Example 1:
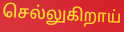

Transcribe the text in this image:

செல்லுகிறாய்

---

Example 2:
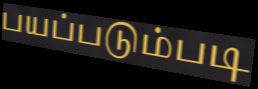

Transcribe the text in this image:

பயப்படும்படி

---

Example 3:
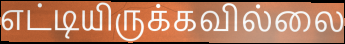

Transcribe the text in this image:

எட்டியிருக்கவில்லை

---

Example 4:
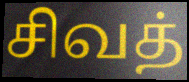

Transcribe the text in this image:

சிவத்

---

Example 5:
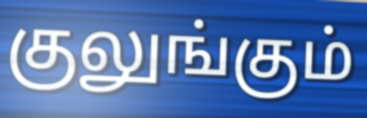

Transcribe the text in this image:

குலுங்கும்